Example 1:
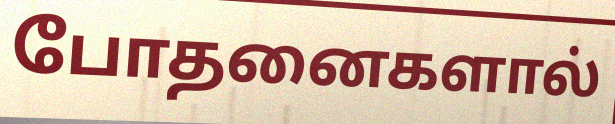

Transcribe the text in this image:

போதனைகளால்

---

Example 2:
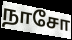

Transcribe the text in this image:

நாசோ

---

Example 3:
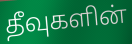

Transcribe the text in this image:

தீவுகளின்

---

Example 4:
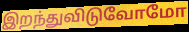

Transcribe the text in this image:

இறந்துவிடுவோமோ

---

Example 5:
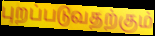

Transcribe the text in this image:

புறப்படுவதற்கும்